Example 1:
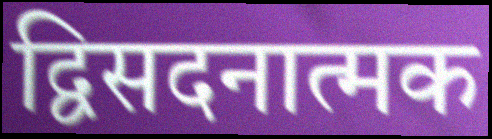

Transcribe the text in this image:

द्विसदनात्मक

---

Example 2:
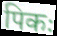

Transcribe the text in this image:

पिकः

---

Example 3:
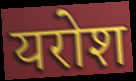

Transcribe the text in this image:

यरोश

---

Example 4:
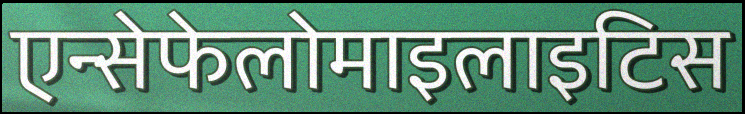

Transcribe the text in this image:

एन्सेफेलोमाइलाइटिस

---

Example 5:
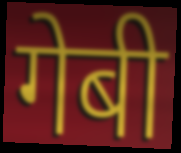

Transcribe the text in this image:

गेबी